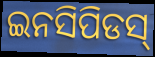
ଇନସିପିଡସ୍